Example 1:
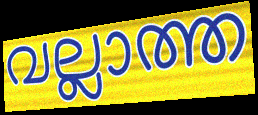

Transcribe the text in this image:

വല്ലാത്ത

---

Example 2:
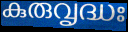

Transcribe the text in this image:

കുരുവൃദ്ധഃ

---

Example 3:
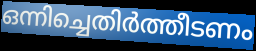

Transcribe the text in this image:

ഒന്നിച്ചെതിർത്തീടണം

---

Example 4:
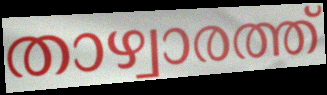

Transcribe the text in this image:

താഴ്വാരത്ത്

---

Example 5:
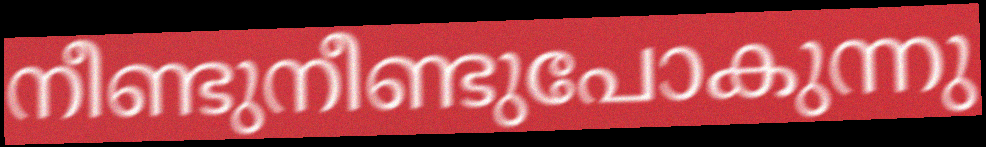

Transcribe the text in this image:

നീണ്ടുനീണ്ടുപോകുന്നു